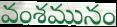
వంశమునం